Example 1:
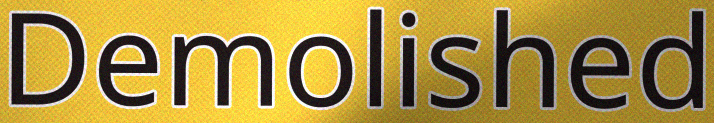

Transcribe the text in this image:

Demolished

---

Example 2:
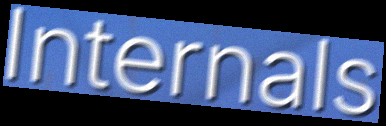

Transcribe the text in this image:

Internals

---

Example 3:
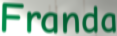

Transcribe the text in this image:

Franda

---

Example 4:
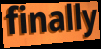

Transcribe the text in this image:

finally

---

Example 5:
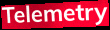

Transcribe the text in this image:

Telemetry